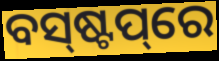
ବସ୍‌ଷ୍ଟପ୍‌ରେ